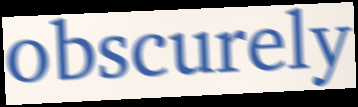
obscurely